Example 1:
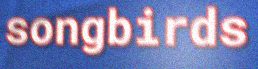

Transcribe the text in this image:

songbirds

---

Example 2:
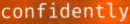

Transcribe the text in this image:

confidently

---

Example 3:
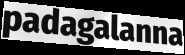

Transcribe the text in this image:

padagalanna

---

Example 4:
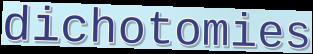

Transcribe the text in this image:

dichotomies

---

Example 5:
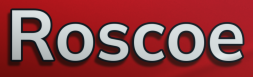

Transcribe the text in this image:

Roscoe